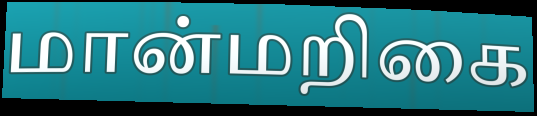
மான்மறிகை